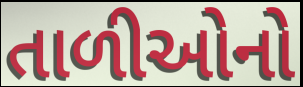
તાળીઓનો